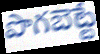
పొగబెట్టే